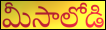
మీసాలోడి